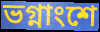
ভগ্নাংশে